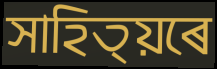
সাহিত্য়ৰে